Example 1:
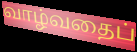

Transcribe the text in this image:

வாழ்வதைப்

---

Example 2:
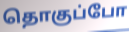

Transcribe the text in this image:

தொகுப்போ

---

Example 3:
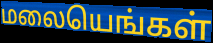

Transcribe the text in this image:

மலையெங்கள்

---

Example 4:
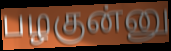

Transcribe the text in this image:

பழகுன்னு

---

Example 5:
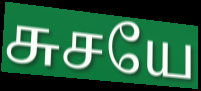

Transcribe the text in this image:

சுசயே